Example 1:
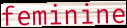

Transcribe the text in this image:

feminine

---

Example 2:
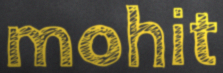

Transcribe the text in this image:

mohit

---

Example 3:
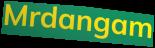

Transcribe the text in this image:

Mrdangam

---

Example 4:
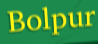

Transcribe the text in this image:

Bolpur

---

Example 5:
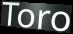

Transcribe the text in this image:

Toro